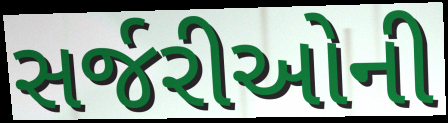
સર્જરીઓની